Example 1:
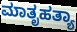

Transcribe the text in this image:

ಮಾತೃಹತ್ಯಾ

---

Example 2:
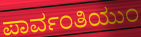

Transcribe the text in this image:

ಪಾರ್ವಂತಿಯುಂ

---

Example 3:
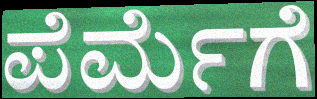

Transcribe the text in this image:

ಪೆರ್ಮೆಗೆ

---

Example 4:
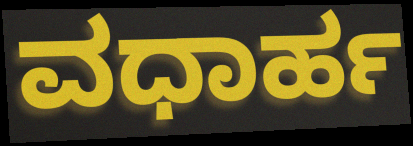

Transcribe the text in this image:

ವಧಾರ್ಹ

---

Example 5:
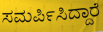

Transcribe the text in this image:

ಸಮರ್ಪಿಸಿದ್ದಾರೆ